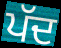
ਪੱਦ